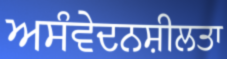
ਅਸੰਵੇਦਨਸ਼ੀਲਤਾ